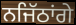
ਨਜਿੱਠਾਂਗੇ